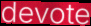
devote